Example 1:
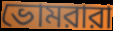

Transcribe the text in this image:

ভোমরারা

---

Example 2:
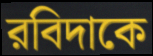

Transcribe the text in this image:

রবিদাকে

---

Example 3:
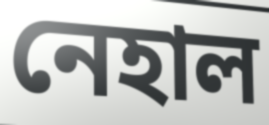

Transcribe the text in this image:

নেহাল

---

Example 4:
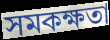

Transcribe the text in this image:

সমকক্ষতা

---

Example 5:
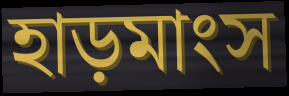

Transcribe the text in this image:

হাড়মাংস